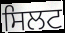
ਸਿਲਟ